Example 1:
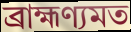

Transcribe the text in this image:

ব্রাহ্মণ্যমত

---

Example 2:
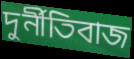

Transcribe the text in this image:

দুর্নীতিবাজ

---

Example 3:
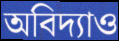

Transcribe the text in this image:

অবিদ্যাও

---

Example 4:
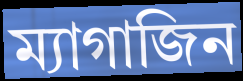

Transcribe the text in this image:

ম্যাগাজিন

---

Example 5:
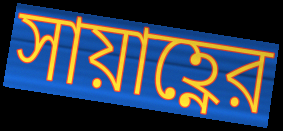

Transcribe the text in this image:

সায়াহ্ণের